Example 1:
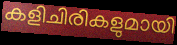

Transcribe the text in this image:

കളിചിരികളുമായി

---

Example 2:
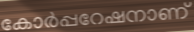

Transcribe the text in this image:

കോർപ്പറേഷനാണ്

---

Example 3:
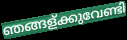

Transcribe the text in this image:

ഞങ്ങള്ക്കുവേണ്ടി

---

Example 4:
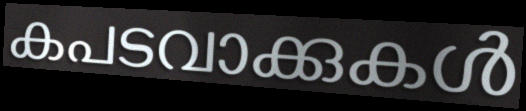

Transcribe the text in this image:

കപടവാക്കുകൾ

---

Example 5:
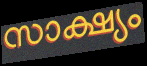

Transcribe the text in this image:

സാക്ഷ്യം